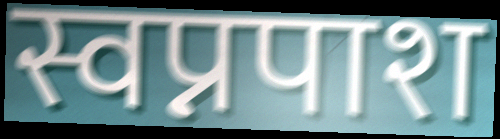
स्वप्नपाश